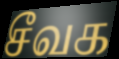
சீவக